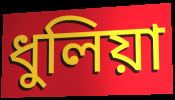
ধুলিয়া